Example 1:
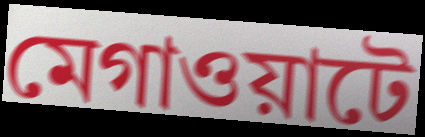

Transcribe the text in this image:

মেগাওয়াটে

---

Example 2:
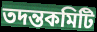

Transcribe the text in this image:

তদন্তকমিটি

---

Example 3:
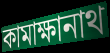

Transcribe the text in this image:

কামাক্ষানাথ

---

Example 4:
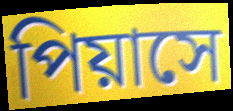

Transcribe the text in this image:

পিয়াসে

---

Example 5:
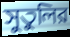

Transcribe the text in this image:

সুতুলির